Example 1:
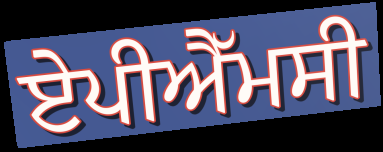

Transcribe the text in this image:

ਏਪੀਐੱਮਸੀ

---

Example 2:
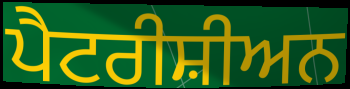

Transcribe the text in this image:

ਪੈਟਰੀਸ਼ੀਅਨ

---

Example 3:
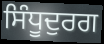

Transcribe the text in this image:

ਸਿੰਧੂਦੁਰਗ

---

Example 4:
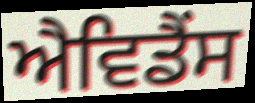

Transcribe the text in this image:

ਐਵਿਡੈਂਸ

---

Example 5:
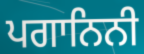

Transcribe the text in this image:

ਪਗਾਨਿਨੀ